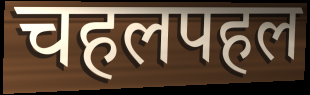
चहलपहल